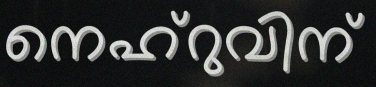
നെഹ്റുവിന്